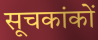
सूचकांकों